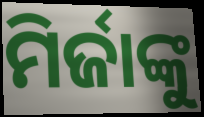
ମିର୍ଜାଙ୍କୁ